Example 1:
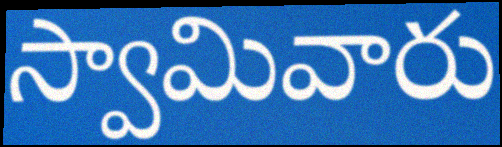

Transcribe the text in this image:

స్వామివారు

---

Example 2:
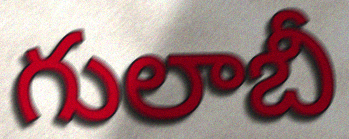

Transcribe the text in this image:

గులాబీ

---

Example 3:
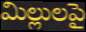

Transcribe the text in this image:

మిల్లులపై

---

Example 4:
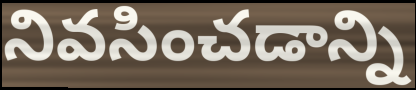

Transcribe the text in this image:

నివసించడాన్ని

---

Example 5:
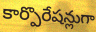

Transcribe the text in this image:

కార్పొరేషన్లుగా